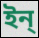
ইন্